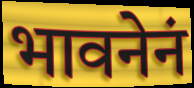
भावनेनं